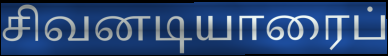
சிவனடியாரைப்